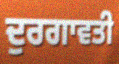
ਦੁਰਗਾਵਤੀ